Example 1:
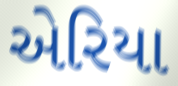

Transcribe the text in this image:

એરિયા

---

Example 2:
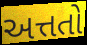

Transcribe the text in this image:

અત્તતો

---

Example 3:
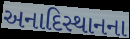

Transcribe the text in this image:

અનાદિસ્થાનના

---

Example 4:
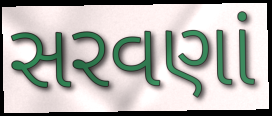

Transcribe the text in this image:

સરવણાં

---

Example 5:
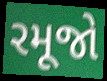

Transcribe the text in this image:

રમૂજો